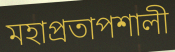
মহাপ্রতাপশালী